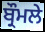
ਬ੍ਰੌਮਲੇ